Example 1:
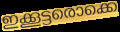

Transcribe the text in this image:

ഇക്കൂട്ടരൊക്കെ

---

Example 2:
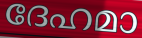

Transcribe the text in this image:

ദേഹമാ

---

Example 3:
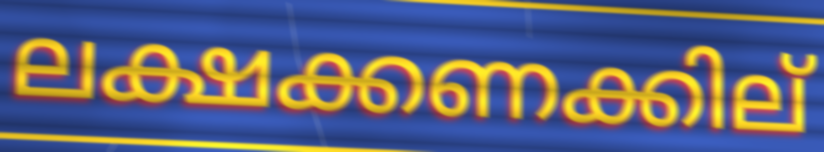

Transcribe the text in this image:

ലക്ഷക്കണക്കില്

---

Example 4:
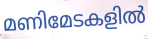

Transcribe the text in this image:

മണിമേടകളിൽ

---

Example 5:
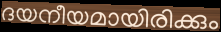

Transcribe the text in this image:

ദയനീയമായിരിക്കും